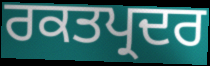
ਰਕਤਪ੍ਰਦਰ